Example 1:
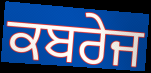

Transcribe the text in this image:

ਕਬਰੇਜ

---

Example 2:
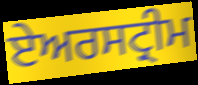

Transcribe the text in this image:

ਏਅਰਸਟ੍ਰੀਮ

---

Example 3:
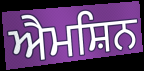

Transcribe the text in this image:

ਐਮਸ਼ਿਨ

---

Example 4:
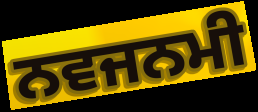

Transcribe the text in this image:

ਨਵਜਨਮੀ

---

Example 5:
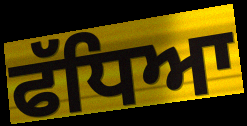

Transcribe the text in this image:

ਫੱਧਿਆ